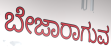
ಬೇಜಾರಾಗುವ